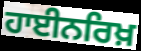
ਹਾਈਨਰਿਖ਼